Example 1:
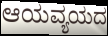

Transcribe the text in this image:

ಆಯವ್ಯಯದ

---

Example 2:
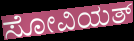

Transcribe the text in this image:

ಸೋವಿಯತ್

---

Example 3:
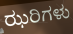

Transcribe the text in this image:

ಝರಿಗಳು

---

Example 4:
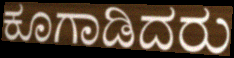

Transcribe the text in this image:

ಕೂಗಾಡಿದರು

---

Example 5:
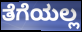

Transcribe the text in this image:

ತೆಗೆಯಲ್ಲ